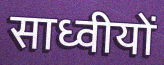
साध्वीयों